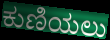
ಕುಣಿಯಲು